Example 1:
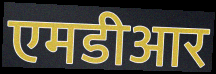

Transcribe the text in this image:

एमडीआर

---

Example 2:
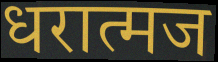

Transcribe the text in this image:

धरात्मज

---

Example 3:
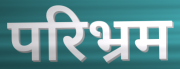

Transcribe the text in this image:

परिभ्रम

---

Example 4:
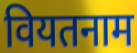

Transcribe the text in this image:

वियतनाम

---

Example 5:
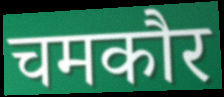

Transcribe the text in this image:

चमकौर